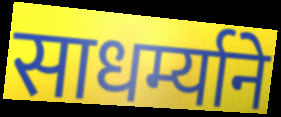
साधर्म्याने